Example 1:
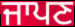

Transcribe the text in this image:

ਜਾਪਣ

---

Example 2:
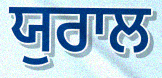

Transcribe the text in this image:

ਯੁਰਾਲ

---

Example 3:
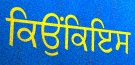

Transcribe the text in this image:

ਕਿਉਂਕਿਇਸ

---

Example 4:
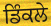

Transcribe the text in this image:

ਡਿੰਕਲੇ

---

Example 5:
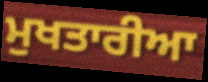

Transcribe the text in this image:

ਮੁਖਤਾਰੀਆ